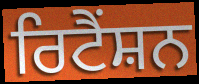
ਰਿਟੈਂਸ਼ਨ